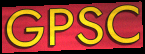
GPSC